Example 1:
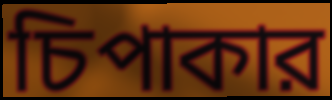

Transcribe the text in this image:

চিপাকার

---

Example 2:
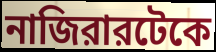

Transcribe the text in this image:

নাজিরারটেকে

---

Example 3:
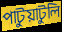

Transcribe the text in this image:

পাটুয়াটুলি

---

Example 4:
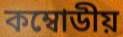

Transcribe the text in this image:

কম্বোডীয়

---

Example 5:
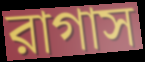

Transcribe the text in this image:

রাগাস